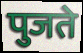
पुजते